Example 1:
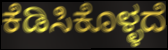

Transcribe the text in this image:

ಕೆಡಿಸಿಕೊಳ್ಳದೆ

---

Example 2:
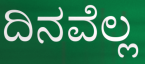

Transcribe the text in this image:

ದಿನವೆಲ್ಲ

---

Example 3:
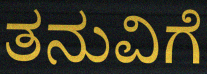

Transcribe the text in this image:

ತನುವಿಗೆ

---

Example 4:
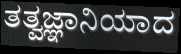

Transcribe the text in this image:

ತತ್ವಜ್ಞಾನಿಯಾದ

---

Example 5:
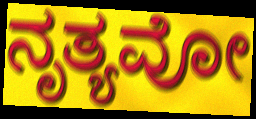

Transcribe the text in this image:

ನೃತ್ಯವೋ